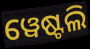
ୱେଷ୍ଟଲି